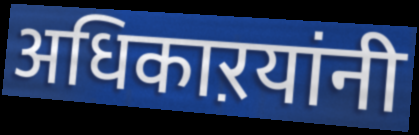
अधिकाऱयांनी